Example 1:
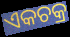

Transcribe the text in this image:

ଏକଚକ୍ର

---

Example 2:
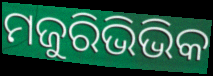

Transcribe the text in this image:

ମଜୁରିଭିଭିକ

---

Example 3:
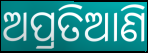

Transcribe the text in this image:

ଅପ୍ରତିଆଣି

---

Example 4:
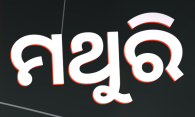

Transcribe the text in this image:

ମଥୁରି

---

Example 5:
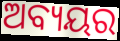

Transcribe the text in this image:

ଅବ୍ୟୟର